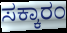
ಸಕ್ಕಾರಂ